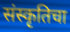
संस्कृतिचा